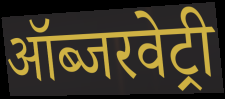
ऑब्जरवेट्री